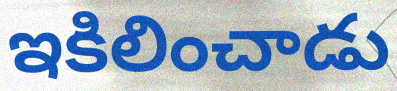
ఇకిలించాడు